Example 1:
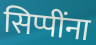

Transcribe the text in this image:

सिप्पींना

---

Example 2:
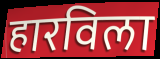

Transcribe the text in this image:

हारविला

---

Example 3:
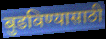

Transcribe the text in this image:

बुडविण्यासाठी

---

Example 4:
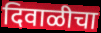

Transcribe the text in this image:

दिवाळीचा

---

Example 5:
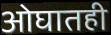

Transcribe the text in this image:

ओघातही